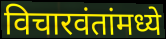
विचारवंतांमध्ये